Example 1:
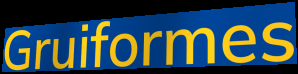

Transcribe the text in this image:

Gruiformes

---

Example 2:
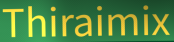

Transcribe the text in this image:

Thiraimix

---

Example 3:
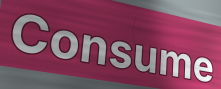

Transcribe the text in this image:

Consume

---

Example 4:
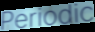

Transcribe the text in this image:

Periodic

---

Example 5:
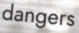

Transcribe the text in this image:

dangers